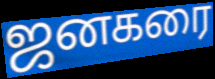
ஜனகரை